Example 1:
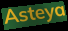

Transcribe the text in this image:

Asteya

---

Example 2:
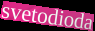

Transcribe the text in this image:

svetodioda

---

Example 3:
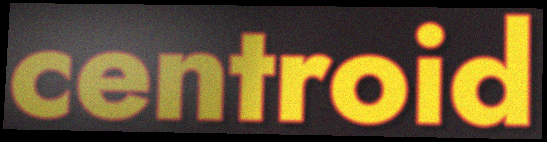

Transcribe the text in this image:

centroid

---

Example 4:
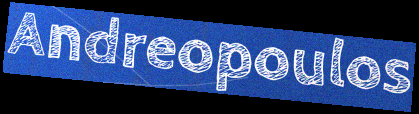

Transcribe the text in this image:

Andreopoulos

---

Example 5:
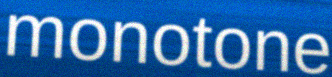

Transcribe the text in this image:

monotone